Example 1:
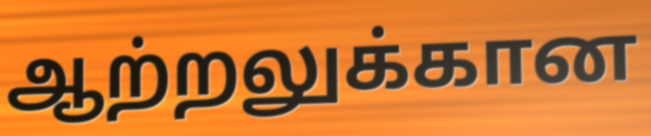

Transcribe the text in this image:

ஆற்றலுக்கான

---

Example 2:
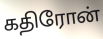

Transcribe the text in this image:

கதிரோன்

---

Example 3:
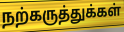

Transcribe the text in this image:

நற்கருத்துக்கள்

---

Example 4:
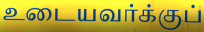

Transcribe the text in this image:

உடையவர்க்குப்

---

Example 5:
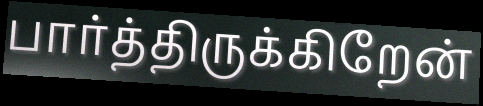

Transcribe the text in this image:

பார்த்திருக்கிறேன்